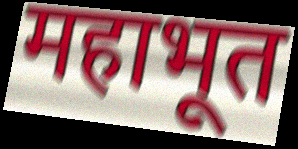
महाभूत